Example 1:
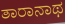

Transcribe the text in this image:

ತಾರಾನಾಥ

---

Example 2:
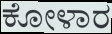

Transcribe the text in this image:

ಕೋಳಾರ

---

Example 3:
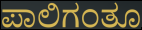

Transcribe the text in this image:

ಪಾಲಿಗಂತೂ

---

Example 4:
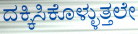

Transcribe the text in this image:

ದಕ್ಕಿಸಿಕೊಳ್ಳುತ್ತಲೇ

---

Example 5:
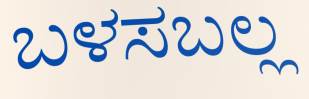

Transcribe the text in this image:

ಬಳಸಬಲ್ಲ